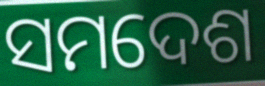
ସମଦେଶ